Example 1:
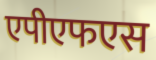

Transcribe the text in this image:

एपीएफएस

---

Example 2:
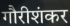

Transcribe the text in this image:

गौरीशंकर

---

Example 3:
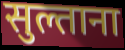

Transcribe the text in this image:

सुल्ताना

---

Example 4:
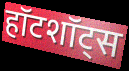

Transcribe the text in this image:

हॉटशॉट्स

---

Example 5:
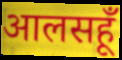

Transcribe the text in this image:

आलसहूँ